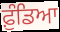
ਫ਼ੁੰਡਿਆ